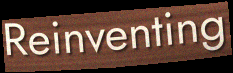
Reinventing